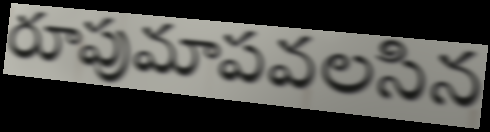
రూపుమాపవలసిన